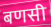
बणसी